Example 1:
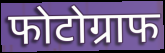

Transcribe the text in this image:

फोटोग्राफ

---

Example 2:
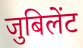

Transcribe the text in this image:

जुबिलेंट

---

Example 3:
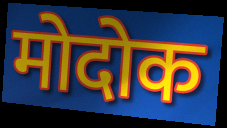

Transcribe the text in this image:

मोदोक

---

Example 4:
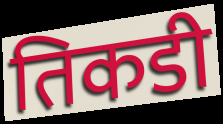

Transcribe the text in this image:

तिकडी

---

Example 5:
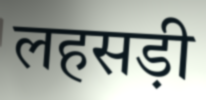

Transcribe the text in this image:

लहसड़ी